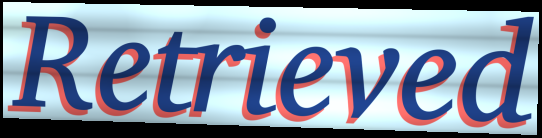
Retrieved